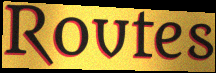
Routes